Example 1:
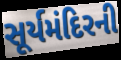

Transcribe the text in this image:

સૂર્યમંદિરની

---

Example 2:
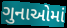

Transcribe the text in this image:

ગુનાઓમાં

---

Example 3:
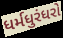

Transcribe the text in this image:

ધર્મધુરંધરો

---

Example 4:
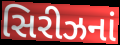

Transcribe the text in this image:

સિરીઝનાં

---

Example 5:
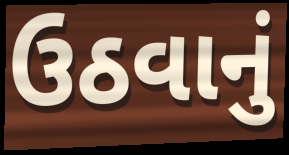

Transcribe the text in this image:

ઉઠવાનું